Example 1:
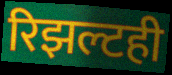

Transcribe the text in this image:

रिझल्टही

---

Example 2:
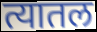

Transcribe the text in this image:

त्यातल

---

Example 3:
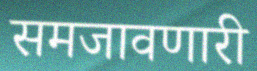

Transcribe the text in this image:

समजावणारी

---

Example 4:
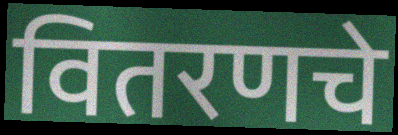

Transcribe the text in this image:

वितरणचे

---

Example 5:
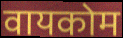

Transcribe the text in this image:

वायकोम